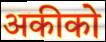
अकीको